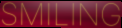
SMILING